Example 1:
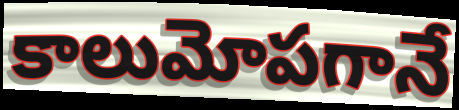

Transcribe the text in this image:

కాలుమోపగానే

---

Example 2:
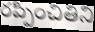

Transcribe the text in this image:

రప్పించితిని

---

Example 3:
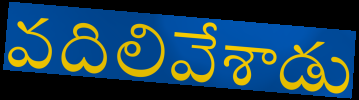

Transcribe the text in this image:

వదిలివేశాడు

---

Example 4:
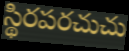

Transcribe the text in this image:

స్థిరపరచుచు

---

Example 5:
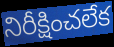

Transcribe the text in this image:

నిరీక్షించలేక